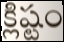
క్లిష్టం